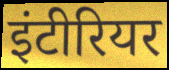
इंटीरियर